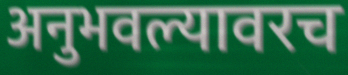
अनुभवल्यावरच